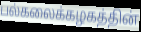
பல்கலைக்கழகத்தின்